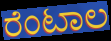
ರೆಂಟಾಲ